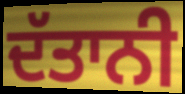
ਦੱਤਾਨੀ